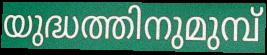
യുദ്ധത്തിനുമുമ്പ്